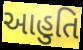
આહુતિ